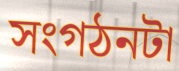
সংগঠনটা